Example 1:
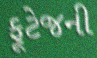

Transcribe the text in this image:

ફૂટેજની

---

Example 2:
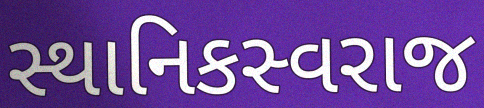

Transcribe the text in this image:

સ્થાનિકસ્વરાજ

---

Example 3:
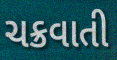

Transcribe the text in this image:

ચક્રવાતી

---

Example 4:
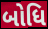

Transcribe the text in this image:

બોધિ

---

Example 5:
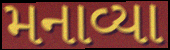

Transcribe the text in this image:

મનાવ્યા